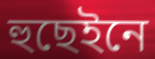
হুছেইনে